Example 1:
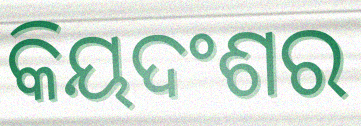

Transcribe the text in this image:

କିୟଦଂଶର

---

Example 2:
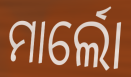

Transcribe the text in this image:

ମାର୍ଲୋ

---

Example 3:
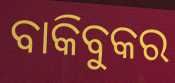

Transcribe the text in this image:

ବାକିବୁକର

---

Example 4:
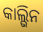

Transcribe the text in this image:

କାଲ୍ଭିନ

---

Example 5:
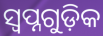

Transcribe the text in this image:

ସ୍ଵପ୍ନଗୁଡ଼ିକ